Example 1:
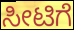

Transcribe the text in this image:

ಸೀಟಿಗೆ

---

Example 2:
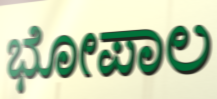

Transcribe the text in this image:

ಭೋಪಾಲ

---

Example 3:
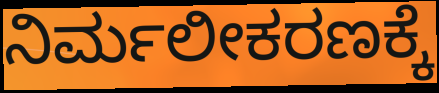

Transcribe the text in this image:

ನಿರ್ಮಲೀಕರಣಕ್ಕೆ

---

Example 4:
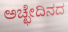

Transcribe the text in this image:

ಅಚ್ಛೇದಿನದ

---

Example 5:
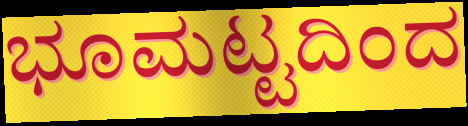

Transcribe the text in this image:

ಭೂಮಟ್ಟದಿಂದ